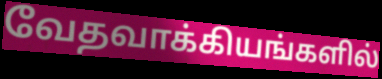
வேதவாக்கியங்களில்